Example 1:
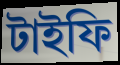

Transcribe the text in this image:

টাইফি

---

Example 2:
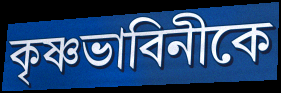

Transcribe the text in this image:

কৃষ্ণভাবিনীকে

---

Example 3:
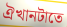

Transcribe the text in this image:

ঐখানটাতে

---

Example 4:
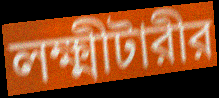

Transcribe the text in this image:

লক্ষ্মীটারীর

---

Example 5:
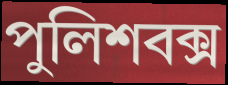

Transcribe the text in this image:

পুলিশবক্স